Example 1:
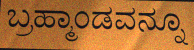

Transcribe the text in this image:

ಬ್ರಹ್ಮಾಂಡವನ್ನೂ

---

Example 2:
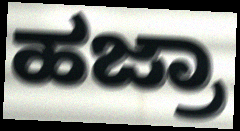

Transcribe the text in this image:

ಹಜ್ರಾ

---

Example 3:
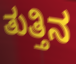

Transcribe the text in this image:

ತುತ್ತಿನ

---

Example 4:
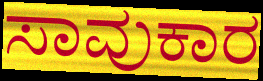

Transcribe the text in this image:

ಸಾವುಕಾರ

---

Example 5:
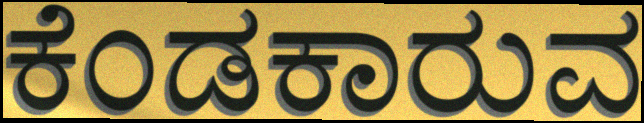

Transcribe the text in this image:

ಕೆಂಡಕಾರುವ